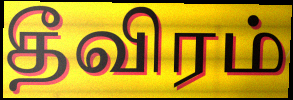
தீவிரம்